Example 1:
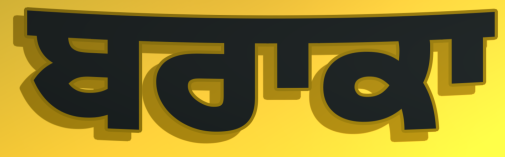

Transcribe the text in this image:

ਬਰਾਕਾ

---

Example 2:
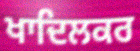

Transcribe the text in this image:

ਖਾਦਿਲਕਰ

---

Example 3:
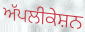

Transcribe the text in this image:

ਅੱਪਲੀਕੇਸ਼ਨ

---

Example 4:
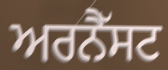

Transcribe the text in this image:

ਅਰਨੈੱਸਟ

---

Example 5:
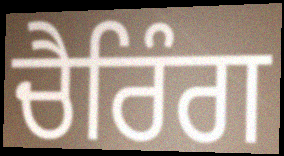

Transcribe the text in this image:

ਚੈਰਿੰਗ